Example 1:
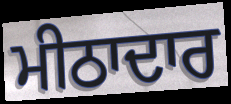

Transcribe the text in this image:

ਮੀਠਾਦਾਰ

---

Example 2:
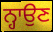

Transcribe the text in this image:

ਨ੍ਹਾਉਣ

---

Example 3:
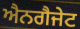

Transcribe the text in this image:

ਐਨਗੈਜੇਟ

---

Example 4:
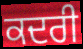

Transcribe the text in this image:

ਕਦਰੀ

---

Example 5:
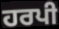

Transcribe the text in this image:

ਹਰਪੀ